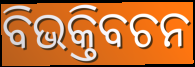
ବିଭକ୍ତିବଚନ